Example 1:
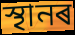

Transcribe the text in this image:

স্থানৰ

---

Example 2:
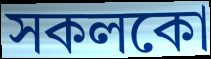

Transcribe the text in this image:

সকলকো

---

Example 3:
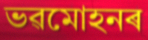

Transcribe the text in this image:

ভৱমোহনৰ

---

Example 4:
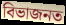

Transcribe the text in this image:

বিভাজনত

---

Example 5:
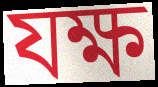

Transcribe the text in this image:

যক্ষ